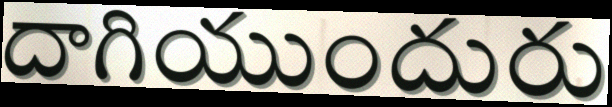
దాగియుందురు